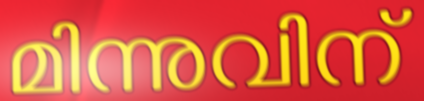
മിന്നുവിന്